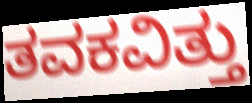
ತವಕವಿತ್ತು